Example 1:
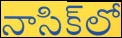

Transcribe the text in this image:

నాసిక్‌లో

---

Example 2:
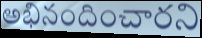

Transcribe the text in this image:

అభినందించారని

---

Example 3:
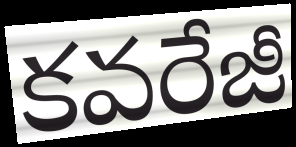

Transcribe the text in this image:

కవరేజీ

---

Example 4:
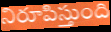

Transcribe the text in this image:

నిరూపిస్తుంది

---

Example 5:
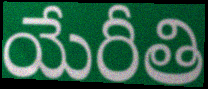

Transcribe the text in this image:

యేరీతి